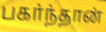
பகர்ந்தான்